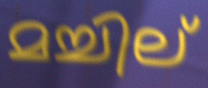
മച്ചില്